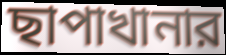
ছাপাখানার